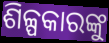
ଶିଳ୍ପକାରଙ୍କୁ